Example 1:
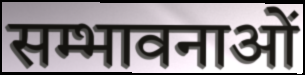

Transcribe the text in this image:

सम्भावनाओं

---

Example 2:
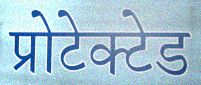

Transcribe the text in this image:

प्रोटेक्टेड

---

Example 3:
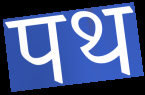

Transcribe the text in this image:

पथ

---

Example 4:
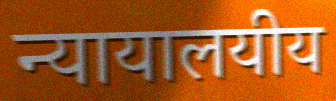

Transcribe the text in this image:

न्यायालयीय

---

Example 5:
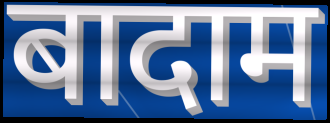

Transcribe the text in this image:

बादाम